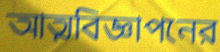
আত্মবিজ্ঞাপনের